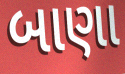
બાણા